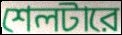
শেলটারে